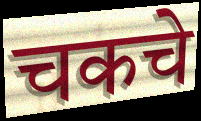
चकचे